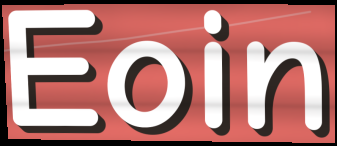
Eoin